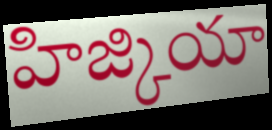
హిజ్కియా